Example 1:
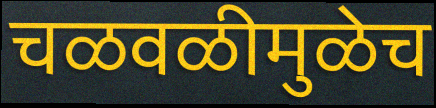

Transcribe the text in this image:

चळवळीमुळेच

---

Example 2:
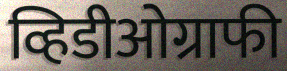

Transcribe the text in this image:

व्हिडीओग्राफी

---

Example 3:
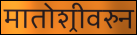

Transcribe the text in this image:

मातोश्रीवरुन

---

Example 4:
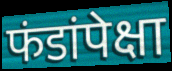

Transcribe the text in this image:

फंडांपेक्षा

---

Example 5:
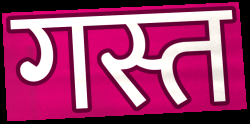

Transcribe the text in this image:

गस्त